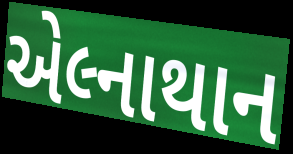
એલ્નાથાન